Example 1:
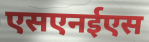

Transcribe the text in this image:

एसएनईएस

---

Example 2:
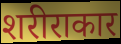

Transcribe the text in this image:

शरीराकार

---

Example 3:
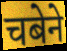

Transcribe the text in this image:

चबेने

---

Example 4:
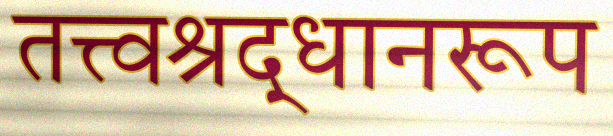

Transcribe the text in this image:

तत्त्वश्रद्धानरूप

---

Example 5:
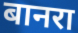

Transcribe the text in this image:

बानरा